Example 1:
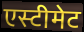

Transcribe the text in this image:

एस्टीमेट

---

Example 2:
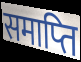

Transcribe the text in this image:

समाप्‍ति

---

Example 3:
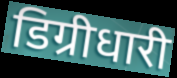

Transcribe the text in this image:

डिग्रीधारी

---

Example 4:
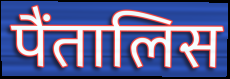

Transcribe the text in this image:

पैंतालिस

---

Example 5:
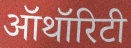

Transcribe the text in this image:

ऑथॉरिटी